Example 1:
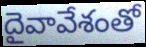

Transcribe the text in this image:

దైవావేశంతో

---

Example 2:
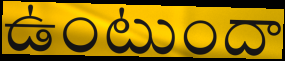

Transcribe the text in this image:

ఉంటుందా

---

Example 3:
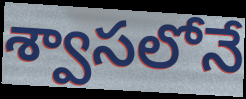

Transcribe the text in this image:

శ్వాసలోనే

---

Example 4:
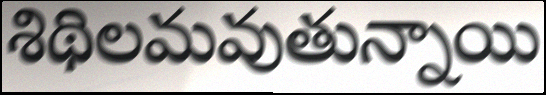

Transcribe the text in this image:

శిథిలమవుతున్నాయి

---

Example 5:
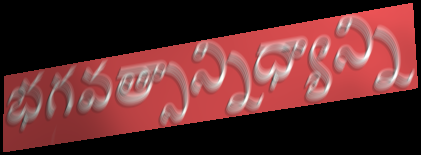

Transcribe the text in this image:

భగవత్సాన్నిధ్యాన్ని